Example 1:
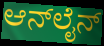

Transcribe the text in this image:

ಆನ್‌ಲೈನ್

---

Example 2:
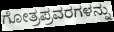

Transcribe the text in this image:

ಗೋತ್ರಪ್ರವರಗಳನ್ನು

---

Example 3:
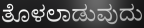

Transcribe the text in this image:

ತೊಳಲಾಡುವುದು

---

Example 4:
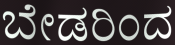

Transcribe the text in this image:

ಬೇಡರಿಂದ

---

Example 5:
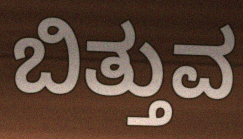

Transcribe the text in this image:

ಬಿತ್ತುವ